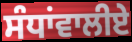
ਸੰਧਾਂਵਾਲੀਏ